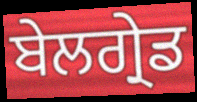
ਬੇਲਗ੍ਰੇਡ